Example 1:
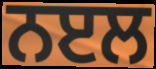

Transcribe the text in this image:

ਨੲਲ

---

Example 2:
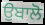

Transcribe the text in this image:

ਉਬਾਲੋ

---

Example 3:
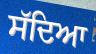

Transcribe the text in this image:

ਸੱਦਿਆ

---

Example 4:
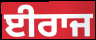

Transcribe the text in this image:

ਈਰਾਜ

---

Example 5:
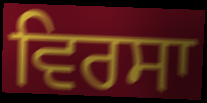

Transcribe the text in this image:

ਵਿਰਸਾ